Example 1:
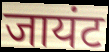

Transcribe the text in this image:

जायंट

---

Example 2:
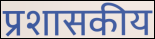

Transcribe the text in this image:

प्रशासकीय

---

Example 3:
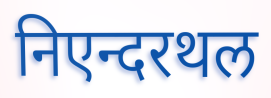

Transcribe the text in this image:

निएन्दरथल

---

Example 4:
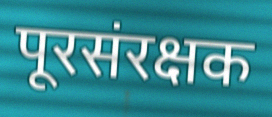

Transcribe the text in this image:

पूरसंरक्षक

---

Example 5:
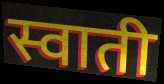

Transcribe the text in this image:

स्वाती